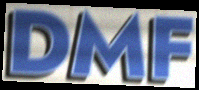
DMF